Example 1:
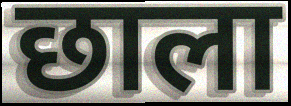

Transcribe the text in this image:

छाला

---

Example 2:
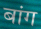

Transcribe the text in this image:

बांग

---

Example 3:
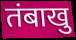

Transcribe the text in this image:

तंबाखु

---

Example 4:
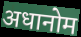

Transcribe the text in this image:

अधानोम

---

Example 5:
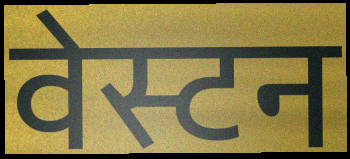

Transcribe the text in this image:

वेस्टन